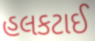
હલકટાઈ